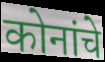
कोनांचे